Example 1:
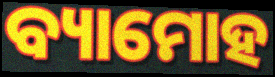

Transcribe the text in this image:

ବ୍ୟାମୋହ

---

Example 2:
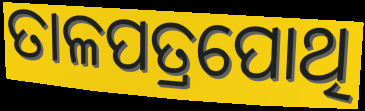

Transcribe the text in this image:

ତାଳପତ୍ରପୋଥି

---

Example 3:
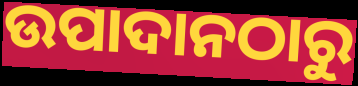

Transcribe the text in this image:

ଉପାଦାନଠାରୁ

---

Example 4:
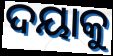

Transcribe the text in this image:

ଦୟାକୁ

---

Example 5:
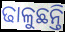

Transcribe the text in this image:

ଢାଳୁଛନ୍ତି